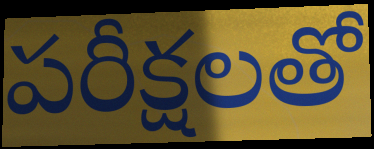
పరీక్షలతో